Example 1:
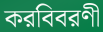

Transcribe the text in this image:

করবিবরণী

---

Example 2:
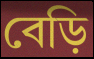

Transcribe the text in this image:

বেড়ি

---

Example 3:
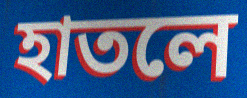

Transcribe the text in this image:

হাতলে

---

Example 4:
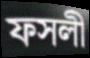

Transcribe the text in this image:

ফসলী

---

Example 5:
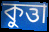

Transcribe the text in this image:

কুত্তা